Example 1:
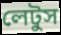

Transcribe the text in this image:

লেটুস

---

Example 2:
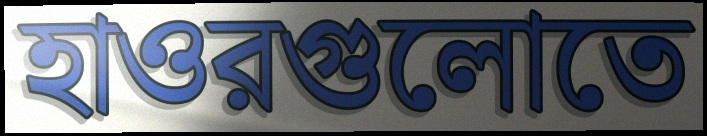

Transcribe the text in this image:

হাওরগুলোতে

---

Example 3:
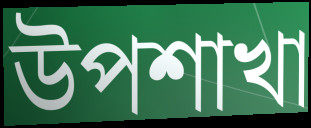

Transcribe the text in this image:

উপশাখা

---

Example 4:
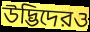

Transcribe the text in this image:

উদ্ভিদেরও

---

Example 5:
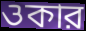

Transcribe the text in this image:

ওকার